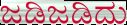
ಜಡಿಜಡಿದು